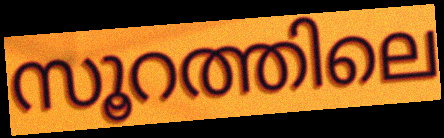
സൂറത്തിലെ